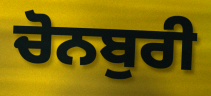
ਚੋਨਬੁਰੀ